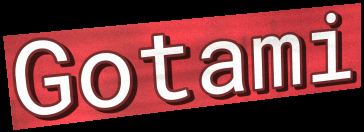
Gotami